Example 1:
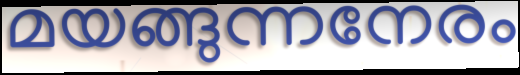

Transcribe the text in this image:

മയങ്ങുന്നനേരം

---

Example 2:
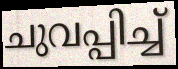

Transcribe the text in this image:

ചുവപ്പിച്ച്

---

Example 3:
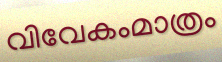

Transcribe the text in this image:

വിവേകംമാത്രം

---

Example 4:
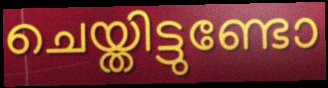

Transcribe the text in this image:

ചെയ്തിട്ടുണ്ടോ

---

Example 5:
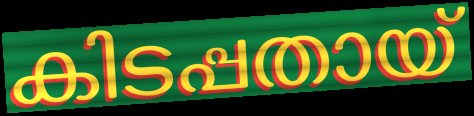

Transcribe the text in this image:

കിടപ്പതായ്